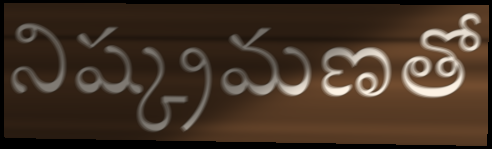
నిష్క్రమణతో